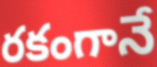
రకంగానే